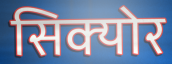
सिक्योर